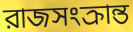
রাজসংক্রান্ত